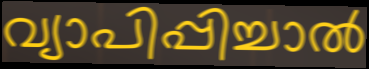
വ്യാപിപ്പിച്ചാൽ